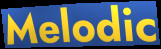
Melodic